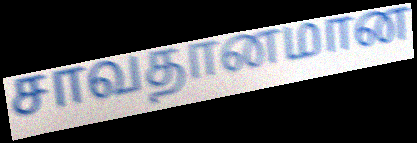
சாவதானமான